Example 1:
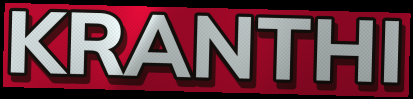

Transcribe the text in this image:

KRANTHI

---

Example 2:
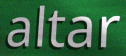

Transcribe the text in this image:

altar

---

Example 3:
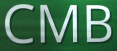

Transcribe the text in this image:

CMB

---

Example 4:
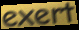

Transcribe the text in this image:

exert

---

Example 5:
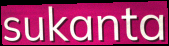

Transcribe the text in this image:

sukanta